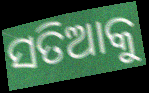
ସତିଆକୁ